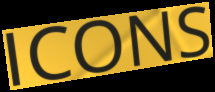
ICONS